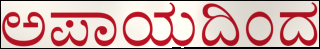
ಅಪಾಯದಿಂದ